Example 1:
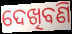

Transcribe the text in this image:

ଦେଖିବଣି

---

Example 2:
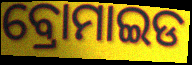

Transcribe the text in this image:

ବ୍ରୋମାଇଡ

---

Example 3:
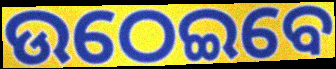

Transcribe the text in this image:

ଉଠେଇବେ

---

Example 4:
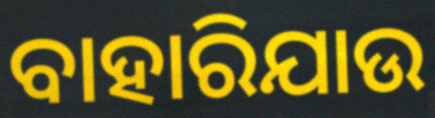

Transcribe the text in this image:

ବାହାରିଯାଉ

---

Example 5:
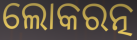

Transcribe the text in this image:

ଲୋକରତ୍ନ